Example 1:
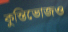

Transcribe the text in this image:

কুন্তিভোজও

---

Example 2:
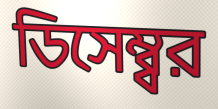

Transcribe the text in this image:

ডিসেম্ব্বর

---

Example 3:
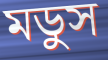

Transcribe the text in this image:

মডুস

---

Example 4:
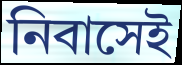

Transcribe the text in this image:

নিবাসেই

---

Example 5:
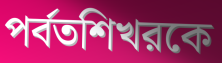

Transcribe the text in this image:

পর্বতশিখরকে